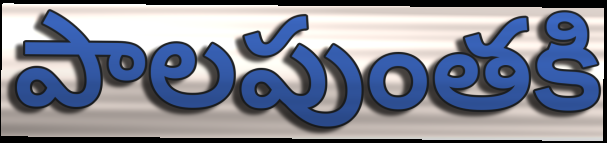
పాలపుంతకి